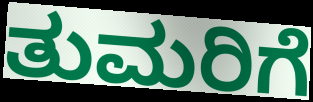
ತುಮರಿಗೆ